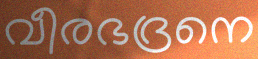
വീരഭദ്രനെ